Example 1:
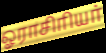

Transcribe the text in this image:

ஓராசிரியர்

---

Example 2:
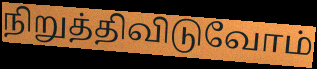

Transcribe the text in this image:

நிறுத்திவிடுவோம்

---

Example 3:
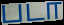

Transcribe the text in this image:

படா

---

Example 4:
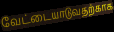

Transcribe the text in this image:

வேட்டையாடுவதற்காக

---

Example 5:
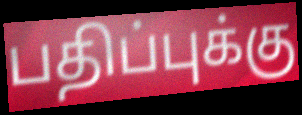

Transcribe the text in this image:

பதிப்புக்கு